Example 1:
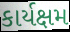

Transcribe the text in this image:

કાર્યક્ષમ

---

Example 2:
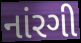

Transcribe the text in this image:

નાંરગી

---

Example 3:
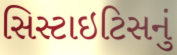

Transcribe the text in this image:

સિસ્ટાઇટિસનું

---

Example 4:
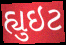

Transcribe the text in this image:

હ્યુઇટ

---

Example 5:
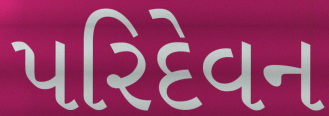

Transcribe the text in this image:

પરિદેવન